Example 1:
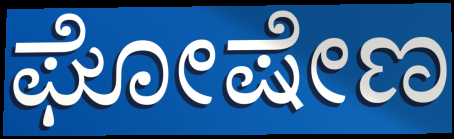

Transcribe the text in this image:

ಘೋಷೇಣ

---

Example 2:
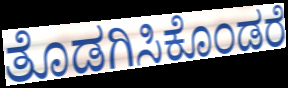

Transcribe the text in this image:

ತೊಡಗಿಸಿಕೊಂಡರೆ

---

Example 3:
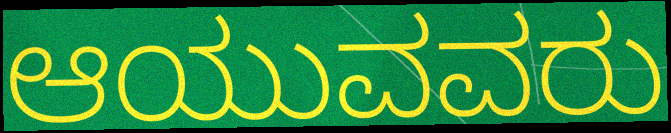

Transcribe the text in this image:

ಆಯುವವರು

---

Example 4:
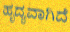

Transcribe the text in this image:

ಹೃದ್ಯವಾಗಿದೆ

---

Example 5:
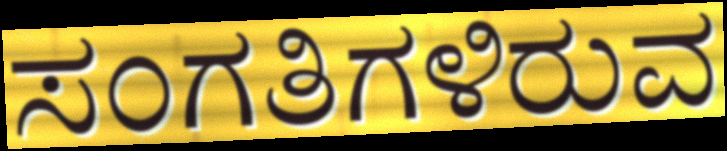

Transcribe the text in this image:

ಸಂಗತಿಗಳಿರುವ